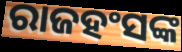
ରାଜହଂସଙ୍କ